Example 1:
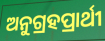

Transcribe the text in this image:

ଅନୁଗ୍ରହପ୍ରାର୍ଥୀ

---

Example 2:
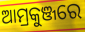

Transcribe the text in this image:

ଆମ୍ରକୁଞ୍ଜରେ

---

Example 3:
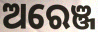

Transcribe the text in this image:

ଅରେଞ୍ଜ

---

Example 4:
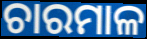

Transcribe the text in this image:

ଚାରମାଳ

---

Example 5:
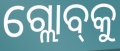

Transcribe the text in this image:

ଗ୍ଲୋବ୍‌କୁ